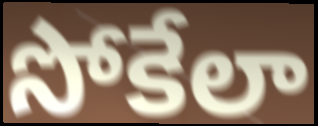
సోకేలా